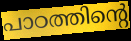
പാഠത്തിന്റെ